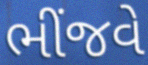
ભીંજવે